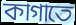
কাগাতে